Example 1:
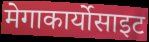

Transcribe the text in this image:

मेगाकार्योसाइट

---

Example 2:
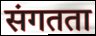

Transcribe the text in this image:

संगतता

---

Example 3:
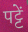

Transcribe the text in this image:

पट्टें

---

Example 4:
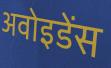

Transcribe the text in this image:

अवोइडेंस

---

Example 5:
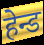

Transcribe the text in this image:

हेन्ड